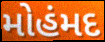
મોહંમદ